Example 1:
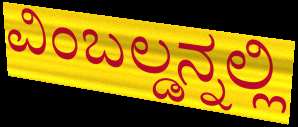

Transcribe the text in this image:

ವಿಂಬಲ್ಡನ್ನಲ್ಲಿ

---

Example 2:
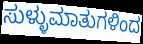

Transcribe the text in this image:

ಸುಳ್ಳುಮಾತುಗಳಿಂದ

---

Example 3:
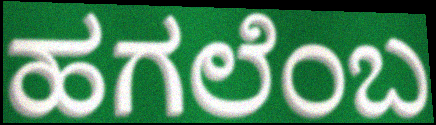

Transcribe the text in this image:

ಹಗಲೆಂಬ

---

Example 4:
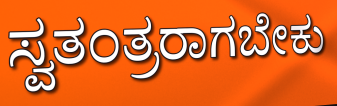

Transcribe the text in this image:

ಸ್ವತಂತ್ರರಾಗಬೇಕು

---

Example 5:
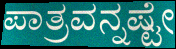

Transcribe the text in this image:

ಪಾತ್ರವನ್ನಷ್ಟೇ